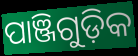
ପାଞ୍ଜିଗୁଡ଼ିକ